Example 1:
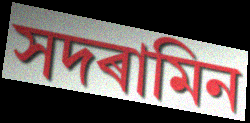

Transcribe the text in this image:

সদৰামিন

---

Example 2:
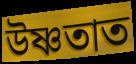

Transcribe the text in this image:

উষ্ণতাত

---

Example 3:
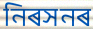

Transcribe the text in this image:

নিৰসনৰ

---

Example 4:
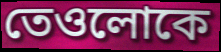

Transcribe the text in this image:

তেওলোকে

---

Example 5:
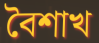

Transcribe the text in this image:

বৈশাখ